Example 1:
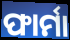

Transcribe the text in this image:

ଫାର୍ମା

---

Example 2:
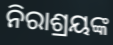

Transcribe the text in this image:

ନିରାଶ୍ରୟଙ୍କ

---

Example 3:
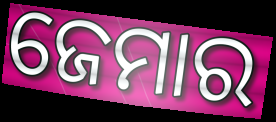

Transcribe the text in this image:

ଜେମାର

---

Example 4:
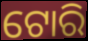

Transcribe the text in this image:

ଟୋରି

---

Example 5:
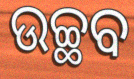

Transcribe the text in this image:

ଉଚ୍ଛବ